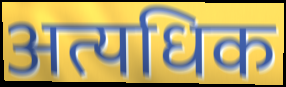
अत्‍यधिक